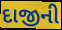
દાજીની